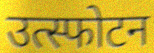
उत्स्फोटन